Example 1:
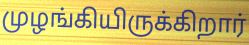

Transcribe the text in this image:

முழங்கியிருக்கிறார்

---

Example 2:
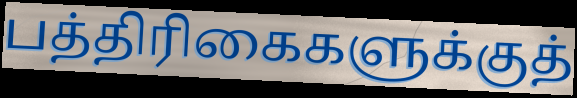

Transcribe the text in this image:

பத்திரிகைகளுக்குத்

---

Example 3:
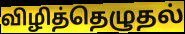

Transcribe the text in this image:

விழித்தெழுதல்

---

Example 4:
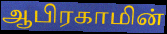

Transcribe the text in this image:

ஆபிரகாமின்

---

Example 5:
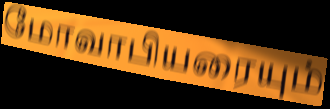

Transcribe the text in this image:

மோவாபியரையும்